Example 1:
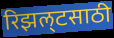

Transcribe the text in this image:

रिझल्टसाठी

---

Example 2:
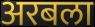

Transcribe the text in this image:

अरबला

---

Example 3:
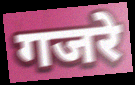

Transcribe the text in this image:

गजरे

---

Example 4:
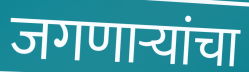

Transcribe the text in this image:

जगणाऱ्यांचा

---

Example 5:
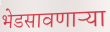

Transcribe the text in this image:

भेडसावणाऱ्या